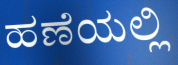
ಹಣೆಯಲ್ಲಿ